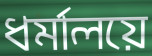
ধর্মালয়ে